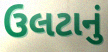
ઉલટાનું